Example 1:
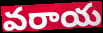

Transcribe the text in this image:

వరాయ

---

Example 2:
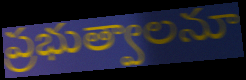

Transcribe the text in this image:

ప్రభుత్వాలనూ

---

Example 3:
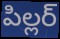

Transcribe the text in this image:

పిల్లర్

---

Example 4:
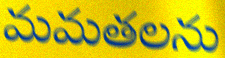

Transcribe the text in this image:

మమతలను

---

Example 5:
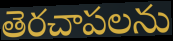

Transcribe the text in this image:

తెరచాపలను